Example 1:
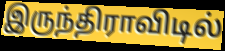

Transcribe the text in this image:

இருந்திராவிடில்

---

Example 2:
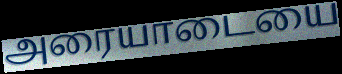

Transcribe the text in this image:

அரையாடையை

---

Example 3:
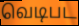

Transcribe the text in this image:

வெடிபட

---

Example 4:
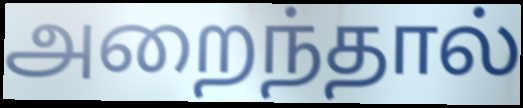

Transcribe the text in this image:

அறைந்தால்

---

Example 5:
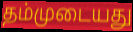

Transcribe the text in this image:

தம்முடையது